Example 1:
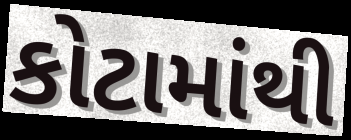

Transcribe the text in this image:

કોટામાંથી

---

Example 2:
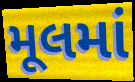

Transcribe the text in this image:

મૂલમાં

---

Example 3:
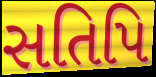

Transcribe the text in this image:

સતિપિ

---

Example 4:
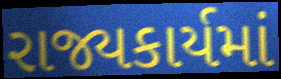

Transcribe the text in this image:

રાજ્યકાર્યમાં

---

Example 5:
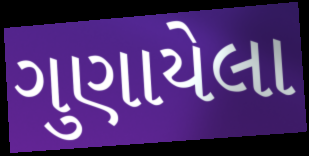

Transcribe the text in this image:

ગુણાયેલા